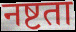
नष्टता